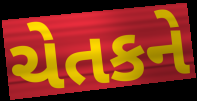
ચેતકને